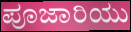
ಪೂಜಾರಿಯು